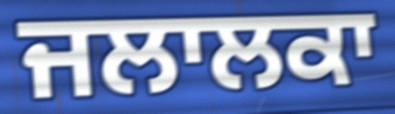
ਜਲਾਲਕਾ